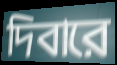
দিবারে